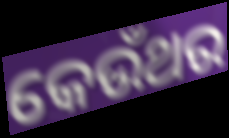
କେଉଁଥର